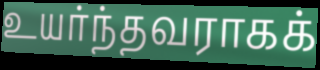
உயர்ந்தவராகக்